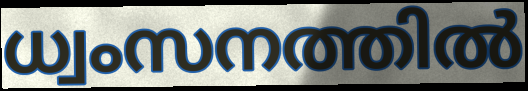
ധ്വംസനത്തിൽ